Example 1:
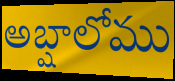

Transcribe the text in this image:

అబ్షాలోము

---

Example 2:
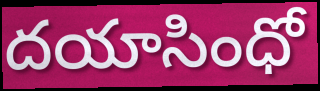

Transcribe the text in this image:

దయాసింధో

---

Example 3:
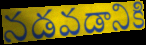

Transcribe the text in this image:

నడవడానికి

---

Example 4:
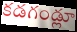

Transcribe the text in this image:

కడగండ్లూ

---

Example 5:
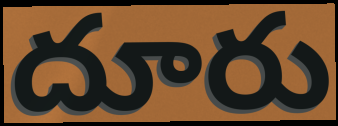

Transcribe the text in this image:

దూరు